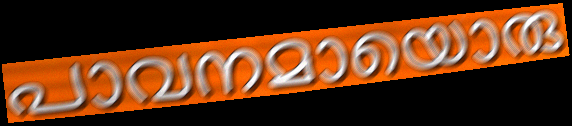
പാവനമായൊരു